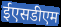
ईएसडीएम